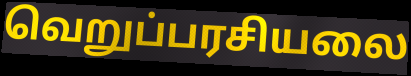
வெறுப்பரசியலை